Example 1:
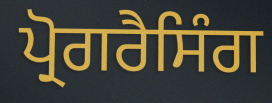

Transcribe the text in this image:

ਪ੍ਰੋਗਰੈਸਿੰਗ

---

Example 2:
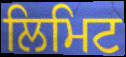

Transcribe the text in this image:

ਲਿਮਿਟ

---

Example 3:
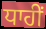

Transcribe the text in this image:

ਧਾਹੀਂ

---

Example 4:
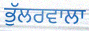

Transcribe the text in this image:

ਭੁੱਲਰਵਾਲਾ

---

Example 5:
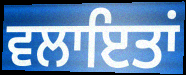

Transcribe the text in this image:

ਵਲਾਇਤਾਂ